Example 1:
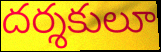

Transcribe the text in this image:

దర్శకులూ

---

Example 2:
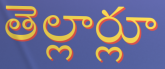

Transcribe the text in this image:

తెల్లార్లూ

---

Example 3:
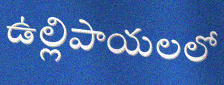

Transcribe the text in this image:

ఉల్లిపాయలలో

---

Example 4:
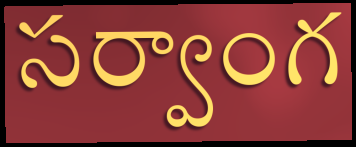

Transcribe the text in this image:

సర్వాంగ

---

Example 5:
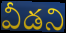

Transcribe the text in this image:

వీడని